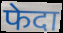
फेदा